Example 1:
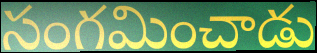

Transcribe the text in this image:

సంగమించాడు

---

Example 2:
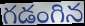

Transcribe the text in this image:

గడంగిన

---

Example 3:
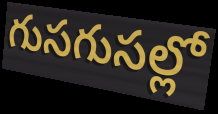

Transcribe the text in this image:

గుసగుసల్లో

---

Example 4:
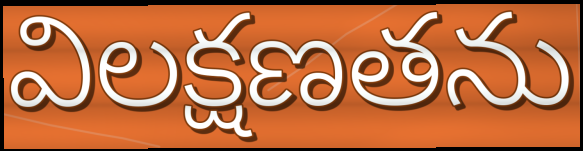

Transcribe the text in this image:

విలక్షణతను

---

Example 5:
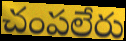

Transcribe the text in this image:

చంపలేరు